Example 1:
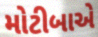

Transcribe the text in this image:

મોટીબાએ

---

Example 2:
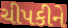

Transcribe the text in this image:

ચીપકીને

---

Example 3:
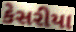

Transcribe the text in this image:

કેસરીયા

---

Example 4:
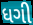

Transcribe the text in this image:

ધગી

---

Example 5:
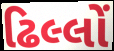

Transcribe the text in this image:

ઢિલ્લોં